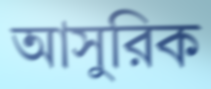
আসুরিক